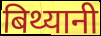
बिथ्यानी